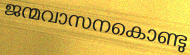
ജന്മവാസനകൊണ്ടു